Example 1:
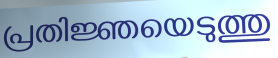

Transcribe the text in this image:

പ്രതിജ്ഞയെടുത്തു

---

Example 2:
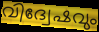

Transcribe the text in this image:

വിദ്വേഷവും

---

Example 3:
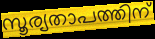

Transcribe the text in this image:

സൂര്യതാപത്തിന്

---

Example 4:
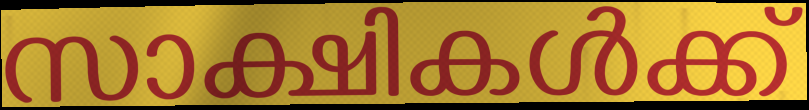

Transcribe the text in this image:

സാക്ഷികൾക്ക്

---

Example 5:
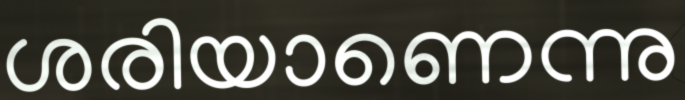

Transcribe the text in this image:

ശരിയാണെന്നു